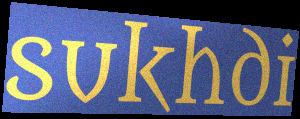
sukhdi